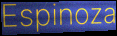
Espinoza